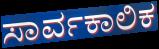
ಸಾರ್ವಕಾಲಿಕ